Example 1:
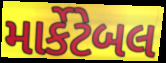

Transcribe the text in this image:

માર્કેટેબલ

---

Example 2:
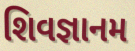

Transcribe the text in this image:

શિવજ્ઞાનમ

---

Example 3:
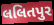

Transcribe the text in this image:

લલિતપુર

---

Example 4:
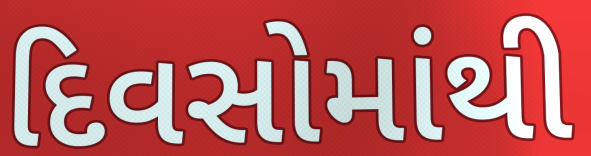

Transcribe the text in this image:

દિવસોમાંથી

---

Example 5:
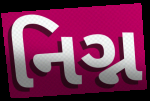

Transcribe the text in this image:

નિગ્ન